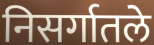
निसर्गातले